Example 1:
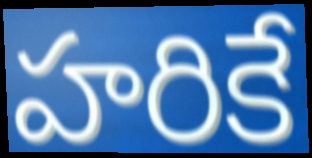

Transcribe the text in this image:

హరికే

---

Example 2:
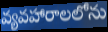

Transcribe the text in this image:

వ్యవహారాలలోను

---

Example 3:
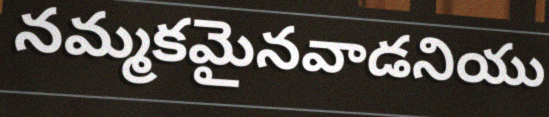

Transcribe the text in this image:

నమ్మకమైనవాడనియు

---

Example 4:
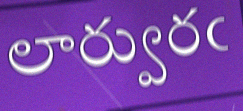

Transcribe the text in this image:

లార్వురఁ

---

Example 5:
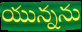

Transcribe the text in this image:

యున్నను